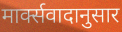
मार्क्सवादानुसार